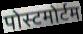
पोस्टमोर्टम